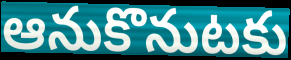
ఆనుకొనుటకు